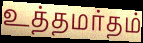
உத்தமர்தம்